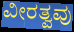
ವೀರತ್ವವು